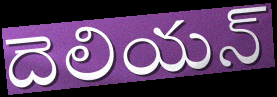
దెలియన్